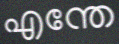
എന്തേ